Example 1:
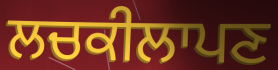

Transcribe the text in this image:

ਲਚਕੀਲਾਪਣ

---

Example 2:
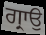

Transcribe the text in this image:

ਗ੍ਰਾਉ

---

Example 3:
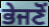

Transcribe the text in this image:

ਭੇਜਣੋਂ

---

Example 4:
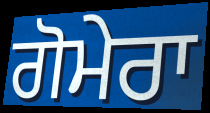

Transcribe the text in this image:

ਗੋਮੇਰਾ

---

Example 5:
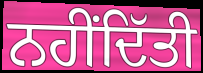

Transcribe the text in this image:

ਨਹੀਂਦਿੱਤੀ